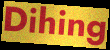
Dihing